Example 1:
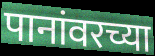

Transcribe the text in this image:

पानांवरच्या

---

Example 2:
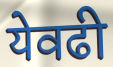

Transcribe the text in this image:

येवढी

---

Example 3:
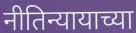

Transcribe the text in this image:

नीतिन्यायाच्या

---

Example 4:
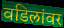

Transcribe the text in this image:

वडिलांवर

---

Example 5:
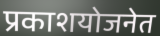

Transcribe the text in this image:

प्रकाशयोजनेत